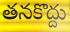
తనకొద్దు